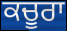
ਕਚੂਰਾ